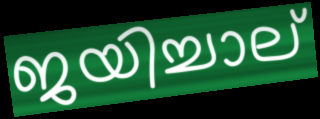
ജയിച്ചാല്